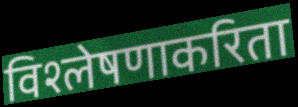
विश्लेषणाकरिता